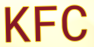
KFC